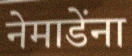
नेमाडेंना